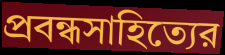
প্রবন্ধসাহিত্যের